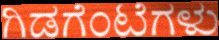
ಗಿಡಗೆಂಟೆಗಳು